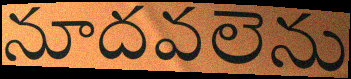
నూదవలెను